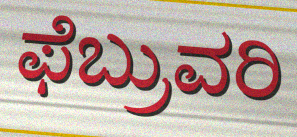
ಫೆಬ್ರುವರಿ